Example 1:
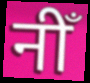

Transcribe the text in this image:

नीँ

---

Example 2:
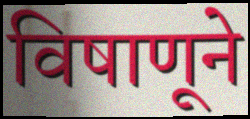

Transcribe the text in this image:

विषाणूने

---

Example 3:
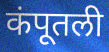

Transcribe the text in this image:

कंपूतली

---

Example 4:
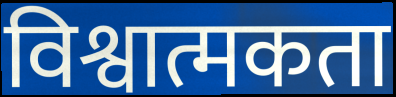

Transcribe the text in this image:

विश्वात्मकता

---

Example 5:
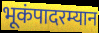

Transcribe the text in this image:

भूकंपादरम्यान